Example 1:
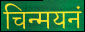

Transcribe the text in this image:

चिन्मयनं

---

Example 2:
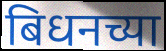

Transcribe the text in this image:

बिधनच्या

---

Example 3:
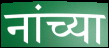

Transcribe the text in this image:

नांच्या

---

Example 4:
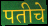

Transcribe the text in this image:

पतीचे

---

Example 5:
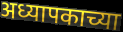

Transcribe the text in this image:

अध्यापकाच्या